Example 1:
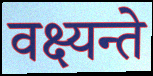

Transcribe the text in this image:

वक्ष्यन्ते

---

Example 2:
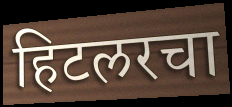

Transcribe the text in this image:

हिटलरचा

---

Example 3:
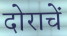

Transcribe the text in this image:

दोराचें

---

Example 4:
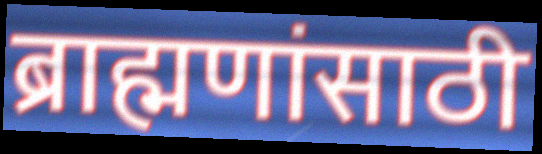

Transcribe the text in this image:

ब्राह्मणांसाठी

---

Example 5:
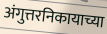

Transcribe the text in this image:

अंगुत्तरनिकायाच्या